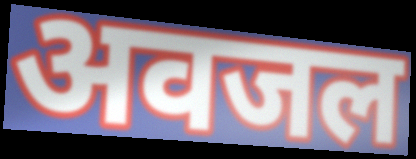
अवजल